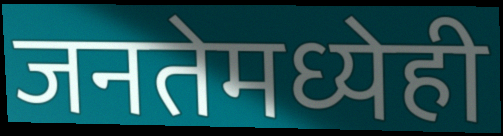
जनतेमध्येही